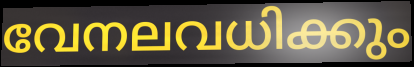
വേനലവധിക്കും